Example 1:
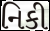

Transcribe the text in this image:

નિકી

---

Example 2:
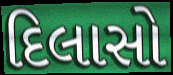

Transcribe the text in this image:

દિલાસો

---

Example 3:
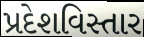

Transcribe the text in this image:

પ્રદેશવિસ્તાર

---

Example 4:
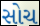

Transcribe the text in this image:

સોચ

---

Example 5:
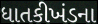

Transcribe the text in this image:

ધાતકીખંડના